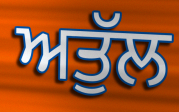
ਅਤੁੱਲ